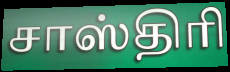
சாஸ்திரி